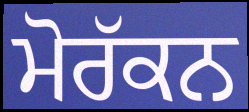
ਮੋਰੱਕਨ